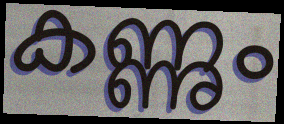
കണ്ണും